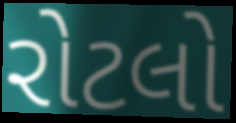
રોટલો